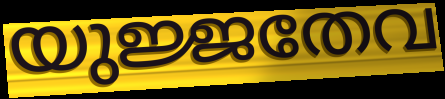
യുജ്ജതേവ